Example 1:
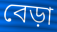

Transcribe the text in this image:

বেড়া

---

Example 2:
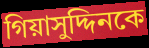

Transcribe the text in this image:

গিয়াসুদ্দিনকে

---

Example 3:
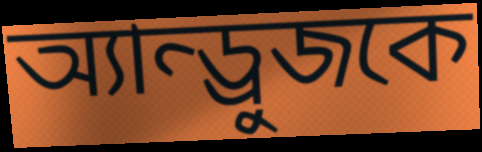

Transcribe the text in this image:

অ্যান্ড্রুজকে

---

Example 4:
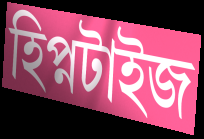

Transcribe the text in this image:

হিপ্নটাইজ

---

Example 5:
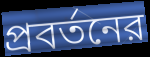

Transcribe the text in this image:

প্রবর্তনের